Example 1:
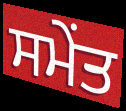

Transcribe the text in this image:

ਸਮੇਂਤ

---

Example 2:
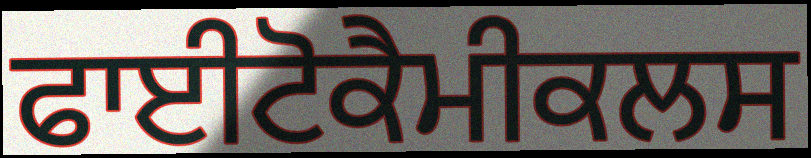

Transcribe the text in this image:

ਫਾਈਟੋਕੈਮੀਕਲਸ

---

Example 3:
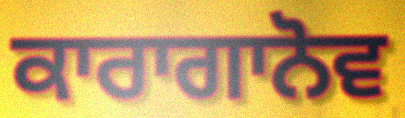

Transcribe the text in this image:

ਕਾਰਾਗਾਨੋਵ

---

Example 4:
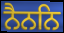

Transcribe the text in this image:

ਨੈਨਨਿ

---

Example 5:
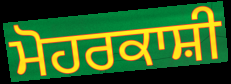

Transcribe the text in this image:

ਮੋਹਰਕਾਸ਼ੀ